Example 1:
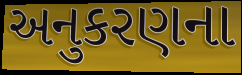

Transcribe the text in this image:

અનુકરણના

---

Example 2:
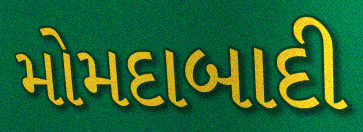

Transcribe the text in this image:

મોમદાબાદી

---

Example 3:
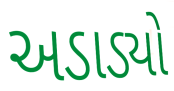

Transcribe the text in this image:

અડાડ્યો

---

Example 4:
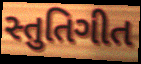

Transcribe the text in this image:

સ્તુતિગીત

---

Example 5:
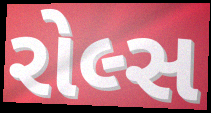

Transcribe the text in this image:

રોલ્સ